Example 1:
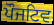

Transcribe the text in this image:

ਪੌਜਟਿਵ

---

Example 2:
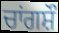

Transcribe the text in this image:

ਚਾਂਗਸ਼ੌ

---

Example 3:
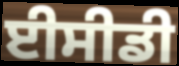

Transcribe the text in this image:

ਈਸੀਡੀ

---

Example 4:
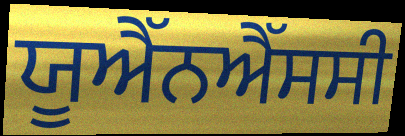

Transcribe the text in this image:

ਯੂਐੱਨਐੱਸਸੀ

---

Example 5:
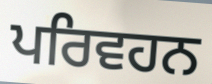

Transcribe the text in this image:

ਪਰਿਵਹਨ